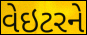
વેઇટરને